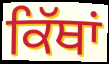
ਕਿੱਥਾਂ